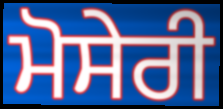
ਮੋਸੇਰੀ